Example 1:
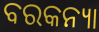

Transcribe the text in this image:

ବରକନ୍ୟା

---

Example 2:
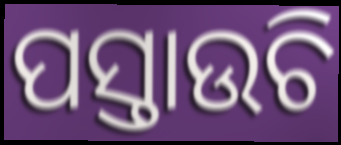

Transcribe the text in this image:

ପସ୍ତାଉଚି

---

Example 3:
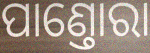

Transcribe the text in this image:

ପାଣ୍ତୋରା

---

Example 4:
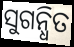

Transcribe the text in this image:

ସୁଗନ୍ଧିତ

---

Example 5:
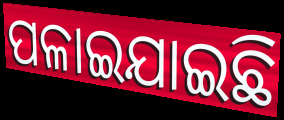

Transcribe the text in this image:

ପଳାଇଯାଇଛି